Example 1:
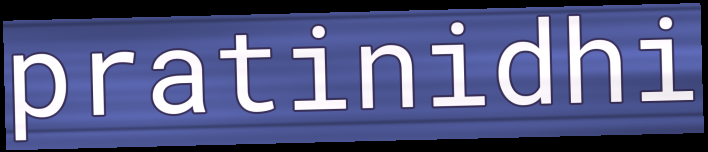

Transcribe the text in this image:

pratinidhi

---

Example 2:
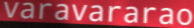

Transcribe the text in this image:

varavararao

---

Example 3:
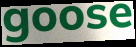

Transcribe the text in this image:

goose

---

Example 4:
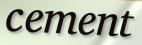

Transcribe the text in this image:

cement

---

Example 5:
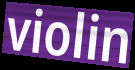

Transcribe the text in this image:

violin